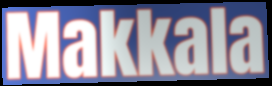
Makkala